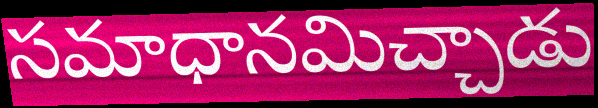
సమాధానమిచ్చాడు